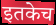
इतकेच